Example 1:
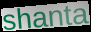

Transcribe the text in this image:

shanta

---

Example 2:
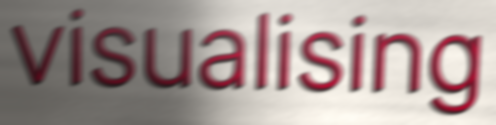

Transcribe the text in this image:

visualising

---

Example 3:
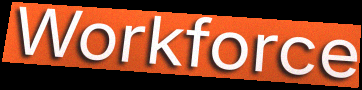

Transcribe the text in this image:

Workforce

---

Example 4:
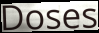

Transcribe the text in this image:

Doses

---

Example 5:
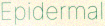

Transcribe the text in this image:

Epidermal